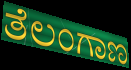
ತೆಲಂಗಾಣ